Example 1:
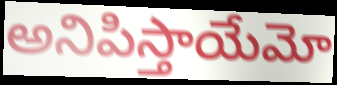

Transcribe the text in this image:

అనిపిస్తాయేమో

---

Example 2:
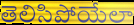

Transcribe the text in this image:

తెలిసిపోయేలా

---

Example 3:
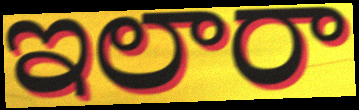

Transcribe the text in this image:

ఇలారా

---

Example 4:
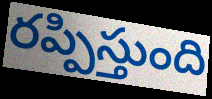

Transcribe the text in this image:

రప్పిస్తుంది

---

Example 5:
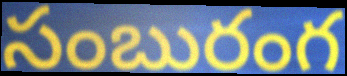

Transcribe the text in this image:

సంబురంగ